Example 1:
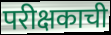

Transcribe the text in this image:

परीक्षकाची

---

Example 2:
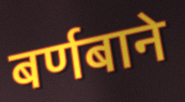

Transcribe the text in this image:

बर्णबाने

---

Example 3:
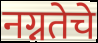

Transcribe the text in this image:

नग्नतेचे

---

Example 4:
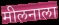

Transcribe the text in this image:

मीलनाला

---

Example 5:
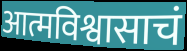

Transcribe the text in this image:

आत्मविश्वासाचं